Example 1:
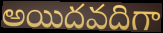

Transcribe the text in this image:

అయిదవదిగా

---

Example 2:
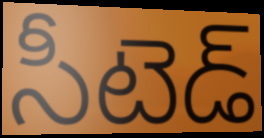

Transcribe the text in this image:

సీటెడ్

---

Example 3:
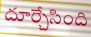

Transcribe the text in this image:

దూర్చేసింది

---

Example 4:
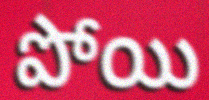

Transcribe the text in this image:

పోయి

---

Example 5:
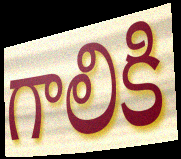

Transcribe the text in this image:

గాలికి